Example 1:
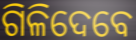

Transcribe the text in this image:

ଗିଳିଦେବେ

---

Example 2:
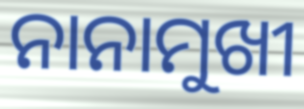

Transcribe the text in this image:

ନାନାମୁଖୀ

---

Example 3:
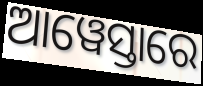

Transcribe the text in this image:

ଆୱେସ୍ତାରେ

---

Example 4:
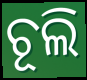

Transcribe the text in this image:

ଚୂଲି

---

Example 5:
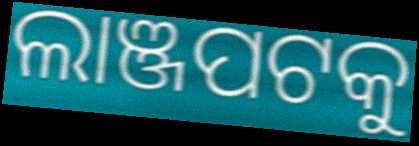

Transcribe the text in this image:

ଲାଞ୍ଜପଟକୁ